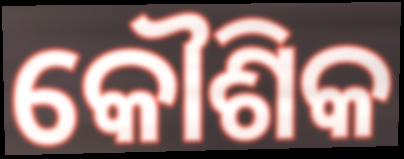
କୌଶିକ